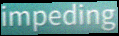
impeding